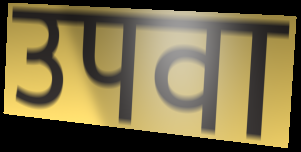
उपवा